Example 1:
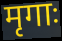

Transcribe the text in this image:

मृगाः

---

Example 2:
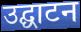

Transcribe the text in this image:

उद्घाटन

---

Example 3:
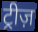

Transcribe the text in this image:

ट्रीज़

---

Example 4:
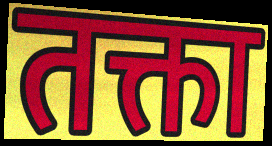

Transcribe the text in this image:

तक्ता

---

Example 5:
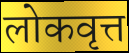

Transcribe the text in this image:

लोकवृत्त